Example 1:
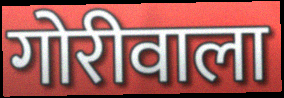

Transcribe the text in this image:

गोरीवाला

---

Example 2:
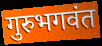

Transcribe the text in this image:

गुरुभगवंत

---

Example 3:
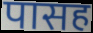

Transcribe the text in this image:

पासह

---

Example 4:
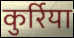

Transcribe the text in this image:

कुर्रिया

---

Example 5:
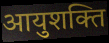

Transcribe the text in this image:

आयुशक्ति